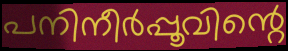
പനിനീർപ്പൂവിന്റെ